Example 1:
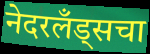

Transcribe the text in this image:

नेदरलँड्सचा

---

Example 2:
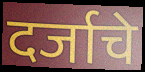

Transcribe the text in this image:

दर्जाचे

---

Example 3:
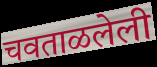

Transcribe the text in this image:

चवताळलेली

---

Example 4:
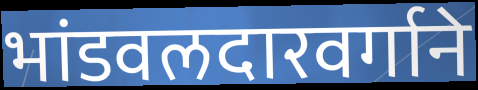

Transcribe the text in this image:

भांडवलदारवर्गाने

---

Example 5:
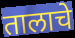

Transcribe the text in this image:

तालाचे